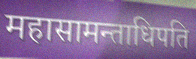
महासामन्ताधिपति